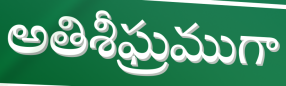
అతిశీఘ్రముగా